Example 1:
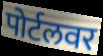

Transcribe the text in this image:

पोर्टलवर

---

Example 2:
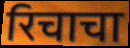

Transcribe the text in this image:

रिचाचा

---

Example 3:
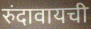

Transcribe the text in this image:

रुंदावायची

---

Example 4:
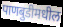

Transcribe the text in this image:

पाणबुडीमधील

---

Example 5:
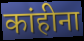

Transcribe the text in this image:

कांहीना